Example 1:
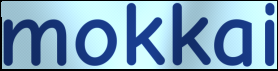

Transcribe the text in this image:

mokkai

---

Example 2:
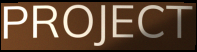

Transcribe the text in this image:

PROJECT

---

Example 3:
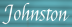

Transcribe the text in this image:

Johnston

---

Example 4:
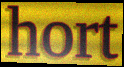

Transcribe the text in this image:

hort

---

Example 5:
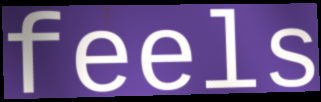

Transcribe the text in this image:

feels